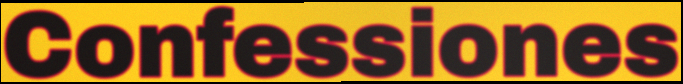
Confessiones